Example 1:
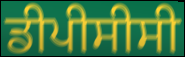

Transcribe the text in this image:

ਡੀਪੀਸੀਸੀ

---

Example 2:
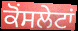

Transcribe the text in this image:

ਕੋਂਸਲੇਟਾਂ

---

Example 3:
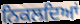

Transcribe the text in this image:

ਨਿਕਲਦਿਆਂ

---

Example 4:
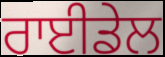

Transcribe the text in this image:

ਰਾਈਡੇਲ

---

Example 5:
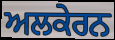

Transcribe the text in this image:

ਅਲਕੇਰਨ